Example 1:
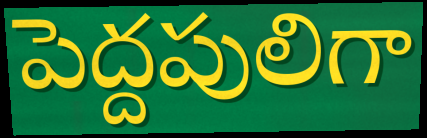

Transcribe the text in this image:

పెద్దపులిగా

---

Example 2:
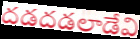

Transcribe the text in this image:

దడదడలాడేవి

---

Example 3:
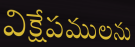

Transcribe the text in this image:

విక్షేపములను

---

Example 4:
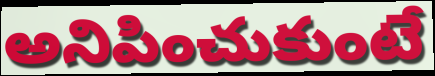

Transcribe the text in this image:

అనిపించుకుంటే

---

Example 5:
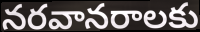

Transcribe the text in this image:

నరవానరాలకు